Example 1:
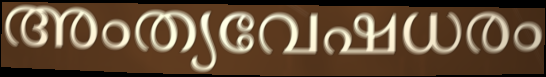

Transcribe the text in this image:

അംത്യവേഷധരം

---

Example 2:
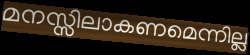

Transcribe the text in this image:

മനസ്സിലാകണമെന്നില്ല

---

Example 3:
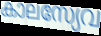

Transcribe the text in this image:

കാലസ്യേവ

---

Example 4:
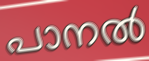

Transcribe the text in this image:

പാനൽ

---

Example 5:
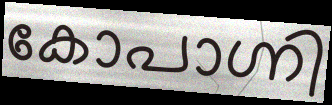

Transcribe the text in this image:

കോപാഗ്നി